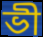
ভী